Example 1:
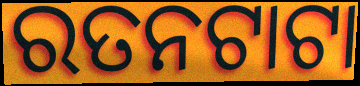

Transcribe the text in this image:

ରତନଟାଟା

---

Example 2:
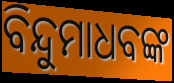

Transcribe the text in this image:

ବିନ୍ଦୁମାଧବଙ୍କ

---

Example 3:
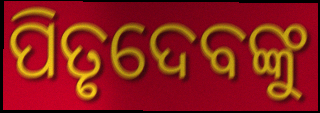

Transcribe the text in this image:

ପିତୃଦେବଙ୍କୁ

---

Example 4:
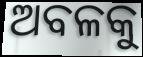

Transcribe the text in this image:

ଅବଳକୁ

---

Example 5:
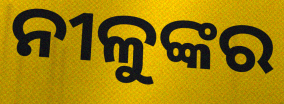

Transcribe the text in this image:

ନୀଳୁଙ୍କର